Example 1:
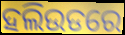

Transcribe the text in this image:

ହଲିଉଡରେ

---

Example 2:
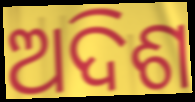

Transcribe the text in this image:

ଅଦିଶ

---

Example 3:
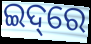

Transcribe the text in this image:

ଇଦ୍‌ରେ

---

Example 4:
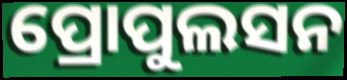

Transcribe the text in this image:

ପ୍ରୋପୁଲସନ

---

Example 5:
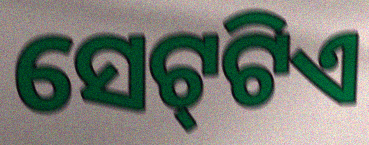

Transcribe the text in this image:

ସେଟ୍‍ଟିଏ